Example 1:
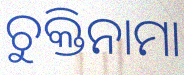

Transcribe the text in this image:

ଚୁକ୍ତିନାମା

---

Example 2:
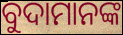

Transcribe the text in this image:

ବୁଦାମାନଙ୍କ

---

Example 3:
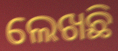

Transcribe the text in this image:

ଲେଖଛି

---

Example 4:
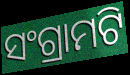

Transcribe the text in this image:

ସଂଗ୍ରାମଟି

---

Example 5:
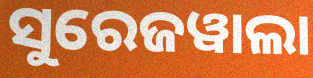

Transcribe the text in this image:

ସୁରେଜୱାଲା